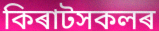
কিৰাটসকলৰ